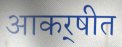
आकर्षीत